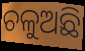
ଚଳୁଅଛି